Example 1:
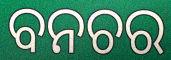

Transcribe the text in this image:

ବନଚର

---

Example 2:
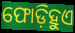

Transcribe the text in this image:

ଫୋଡ଼ିହୁଏ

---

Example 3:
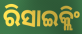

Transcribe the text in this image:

ରିସାଇକ୍ଲିଂ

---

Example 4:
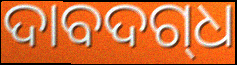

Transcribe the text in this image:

ଦାବଦଗ୍‍ଧ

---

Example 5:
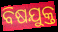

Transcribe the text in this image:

ବିଷଯୁକ୍ତ